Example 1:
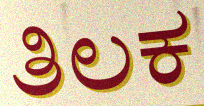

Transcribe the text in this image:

ತಿಲಕ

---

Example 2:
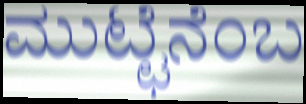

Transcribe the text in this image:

ಮುಟ್ಟೆನೆಂಬ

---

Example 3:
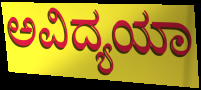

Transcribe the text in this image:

ಅವಿದ್ಯಯಾ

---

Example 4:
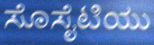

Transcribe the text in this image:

ಸೊಸೈಟಿಯು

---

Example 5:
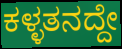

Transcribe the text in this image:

ಕಳ್ಳತನದ್ದೇ